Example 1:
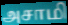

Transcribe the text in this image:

அசாமி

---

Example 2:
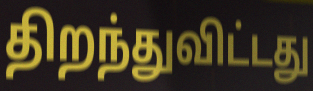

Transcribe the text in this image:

திறந்துவிட்டது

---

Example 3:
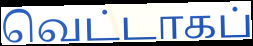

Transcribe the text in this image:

வெட்டாகப்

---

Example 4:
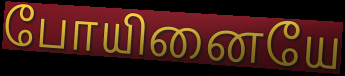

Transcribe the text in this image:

போயினையே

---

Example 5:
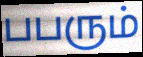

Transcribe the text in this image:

பபரும்